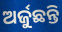
ଅର୍ଜୁଛନ୍ତି